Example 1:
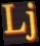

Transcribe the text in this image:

Lj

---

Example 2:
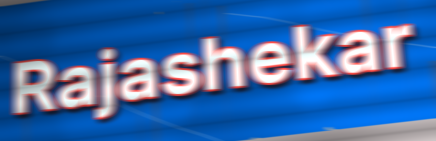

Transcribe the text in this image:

Rajashekar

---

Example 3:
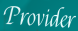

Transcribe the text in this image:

Provider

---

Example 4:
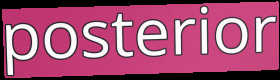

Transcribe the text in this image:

posterior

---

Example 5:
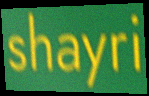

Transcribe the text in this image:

shayri